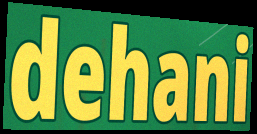
dehani